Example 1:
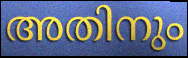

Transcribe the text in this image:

അതിനും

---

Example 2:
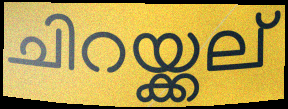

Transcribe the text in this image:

ചിറയ്ക്കല്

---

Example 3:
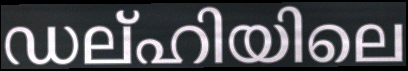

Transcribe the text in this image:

ഡല്ഹിയിലെ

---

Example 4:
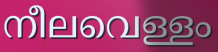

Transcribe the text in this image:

നീലവെള്ളം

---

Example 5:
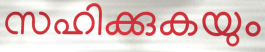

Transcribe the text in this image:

സഹിക്കുകയും